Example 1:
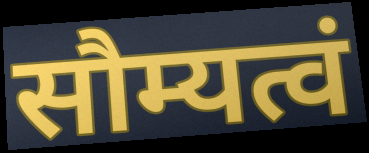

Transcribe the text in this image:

सौम्यत्वं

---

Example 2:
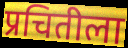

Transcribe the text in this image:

प्रचितीला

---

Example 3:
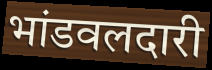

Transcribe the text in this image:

भांडवलदारी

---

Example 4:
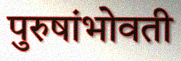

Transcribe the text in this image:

पुरुषांभोवती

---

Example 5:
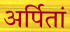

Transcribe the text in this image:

अर्पितां